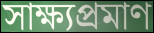
সাক্ষ্যপ্রমাণ